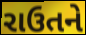
રાઉતને